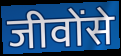
जीवोंसे